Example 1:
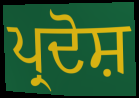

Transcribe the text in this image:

ਪ੍ਰਦੋਸ਼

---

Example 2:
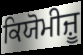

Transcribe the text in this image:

ਕਿਯੋਮੀਜ਼ੂ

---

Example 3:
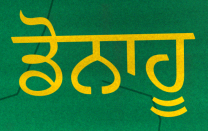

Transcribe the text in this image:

ਡੋਨਾਹੂ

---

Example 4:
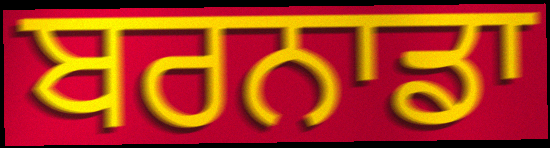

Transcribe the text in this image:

ਬਰਨਾਡਾ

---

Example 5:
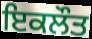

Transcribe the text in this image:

ਇਕਲੌਤ